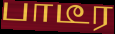
பாடீர